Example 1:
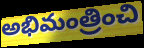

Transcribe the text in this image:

అభిమంత్రించి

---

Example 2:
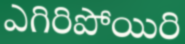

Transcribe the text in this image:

ఎగిరిపోయిరి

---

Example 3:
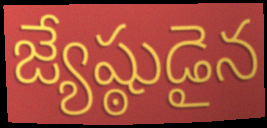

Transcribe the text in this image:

జ్యేష్ఠుడైన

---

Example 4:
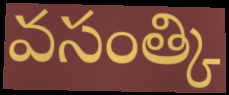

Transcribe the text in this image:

వసంత్కి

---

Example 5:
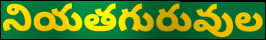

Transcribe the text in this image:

నియతగురువుల